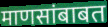
माणसांबाबत